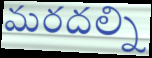
మరదల్ని